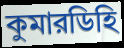
কুমারডিহি